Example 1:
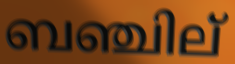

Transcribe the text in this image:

ബഞ്ചില്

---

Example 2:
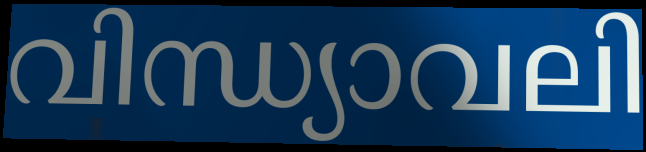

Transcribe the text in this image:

വിന്ധ്യാവലി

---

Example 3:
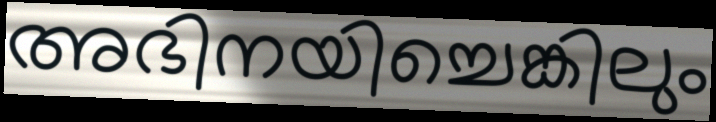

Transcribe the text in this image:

അഭിനയിച്ചെങ്കിലും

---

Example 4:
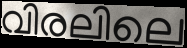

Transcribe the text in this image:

വിരലിലെ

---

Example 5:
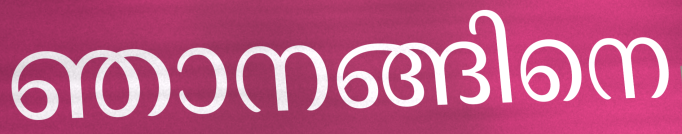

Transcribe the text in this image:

ഞാനങ്ങിനെ